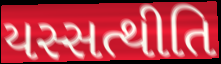
યસ્સત્થીતિ